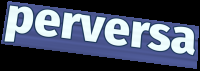
perversa